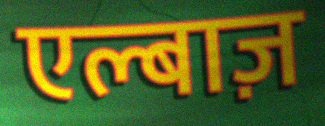
एल्बाज़